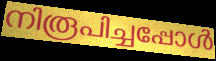
നിരൂപിച്ചപ്പോൾ